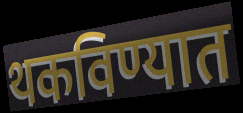
थकविण्यात